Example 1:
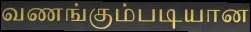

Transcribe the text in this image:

வணங்கும்படியான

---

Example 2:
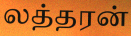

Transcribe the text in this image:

லத்தரன்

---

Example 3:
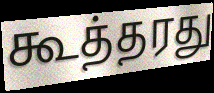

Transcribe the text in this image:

கூத்தரது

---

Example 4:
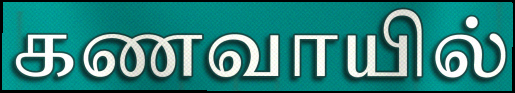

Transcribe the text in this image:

கணவாயில்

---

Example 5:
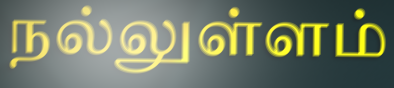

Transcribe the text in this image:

நல்லுள்ளம்